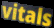
vitals